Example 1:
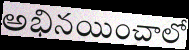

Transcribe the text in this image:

అభినయించాలో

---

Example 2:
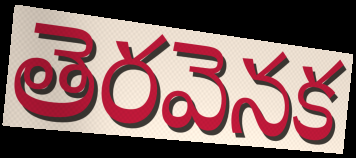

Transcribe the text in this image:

తెరవెనక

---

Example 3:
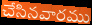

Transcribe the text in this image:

చేసినవారము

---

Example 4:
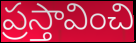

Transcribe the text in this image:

ప్రస్తావించి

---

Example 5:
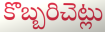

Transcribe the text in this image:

కొబ్బరిచెట్లు